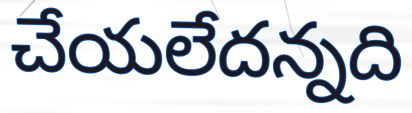
చేయలేదన్నది